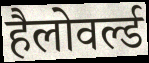
हैलोवर्ल्ड